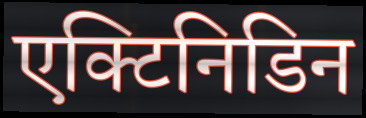
एक्टिनिडिन